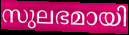
സുലഭമായി